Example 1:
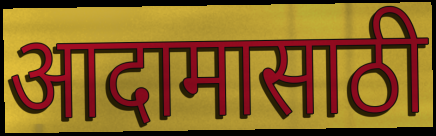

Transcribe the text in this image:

आदामासाठी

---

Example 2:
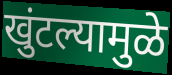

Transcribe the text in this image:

खुंटल्यामुळे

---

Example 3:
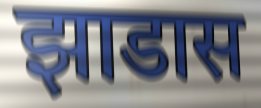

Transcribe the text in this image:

झाडास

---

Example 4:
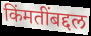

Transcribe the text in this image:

किंमतींबद्दल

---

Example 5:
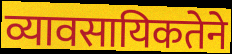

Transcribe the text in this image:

व्यावसायिकतेने